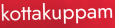
kottakuppam